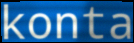
konta